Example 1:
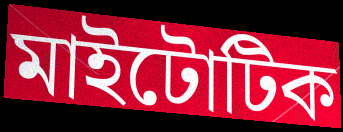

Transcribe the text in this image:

মাইটোটিক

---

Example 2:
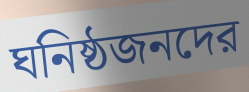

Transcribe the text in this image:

ঘনিষ্ঠজনদের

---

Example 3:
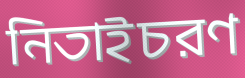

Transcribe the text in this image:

নিতাইচরণ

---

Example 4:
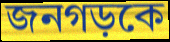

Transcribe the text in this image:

জনগড়কে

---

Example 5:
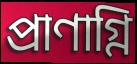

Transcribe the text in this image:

প্রাণাগ্নি